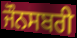
ਜੌਨਸਬਰੀ